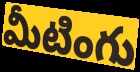
మీటింగు